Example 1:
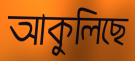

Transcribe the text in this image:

আকুলিছে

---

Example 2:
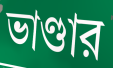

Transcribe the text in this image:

ভাণ্ডার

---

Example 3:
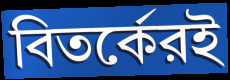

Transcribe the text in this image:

বিতর্কেরই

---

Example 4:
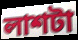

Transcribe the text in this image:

লাশটা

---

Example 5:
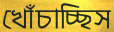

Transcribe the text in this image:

খোঁচাচ্ছিস